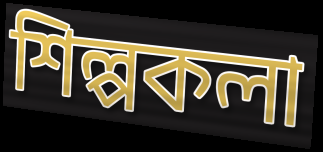
শিল্পকলা